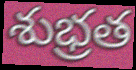
శుభ్రత